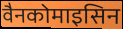
वैनकोमाइसिन